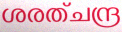
ശരത്ചന്ദ്ര